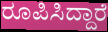
ರೂಪಿಸಿದ್ದಾರೆ